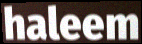
haleem